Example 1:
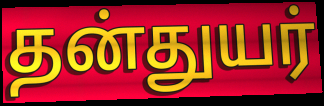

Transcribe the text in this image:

தன்துயர்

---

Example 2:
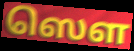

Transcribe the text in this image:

ஸௌ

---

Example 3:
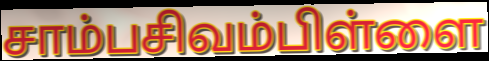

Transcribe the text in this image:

சாம்பசிவம்பிள்ளை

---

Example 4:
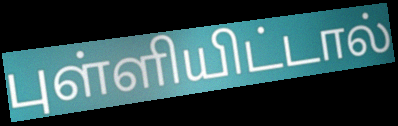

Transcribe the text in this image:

புள்ளியிட்டால்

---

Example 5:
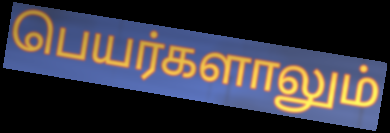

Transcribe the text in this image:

பெயர்களாலும்